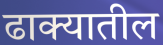
ढाक्यातील